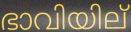
ഭാവിയില്